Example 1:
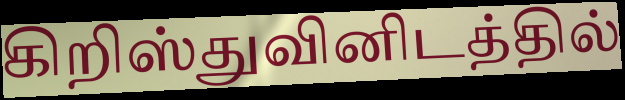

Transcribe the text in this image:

கிறிஸ்துவினிடத்தில்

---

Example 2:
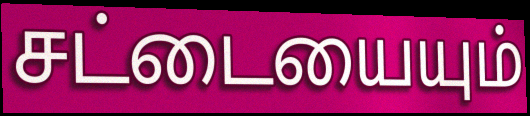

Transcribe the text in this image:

சட்டையையும்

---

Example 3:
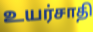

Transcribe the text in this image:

உயர்சாதி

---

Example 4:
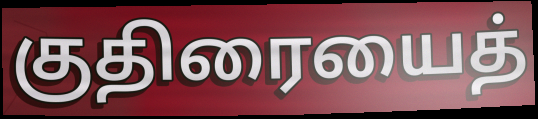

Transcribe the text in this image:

குதிரையைத்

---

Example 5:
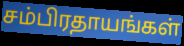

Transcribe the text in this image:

சம்பிரதாயங்கள்